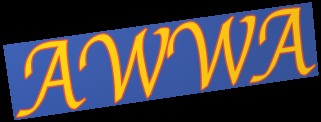
AWWA